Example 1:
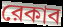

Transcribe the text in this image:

রেকাব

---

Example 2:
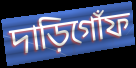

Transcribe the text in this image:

দাড়িগোঁফ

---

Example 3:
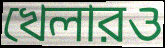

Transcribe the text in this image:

খেলারও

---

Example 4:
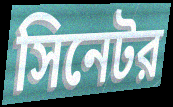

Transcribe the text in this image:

সিনেটর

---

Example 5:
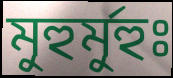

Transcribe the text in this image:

মুহুর্মুহুঃ